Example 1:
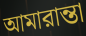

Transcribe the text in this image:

আমারান্তা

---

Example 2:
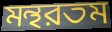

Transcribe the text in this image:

মন্থরতম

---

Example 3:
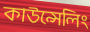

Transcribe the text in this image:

কাউন্সেলিং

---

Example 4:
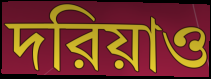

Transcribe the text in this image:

দরিয়াও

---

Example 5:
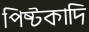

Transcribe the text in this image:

পিষ্টকাদি